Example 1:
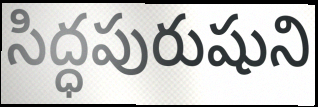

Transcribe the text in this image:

సిద్ధపురుషుని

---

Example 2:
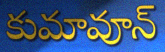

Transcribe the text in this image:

కుమావూన్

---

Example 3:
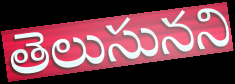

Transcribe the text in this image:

తెలుసునని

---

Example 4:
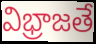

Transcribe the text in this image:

విభ్రాజతే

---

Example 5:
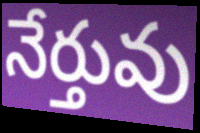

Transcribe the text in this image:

నేర్తువు